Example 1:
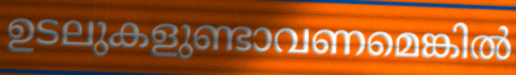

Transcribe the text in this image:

ഉടലുകളുണ്ടാവണമെങ്കിൽ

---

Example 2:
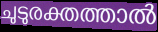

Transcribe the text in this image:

ചുടുരക്തത്താൽ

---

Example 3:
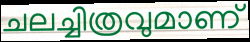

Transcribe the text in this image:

ചലച്ചിത്രവുമാണ്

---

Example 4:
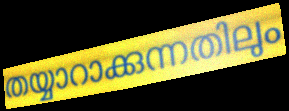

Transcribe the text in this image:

തയ്യാറാക്കുന്നതിലും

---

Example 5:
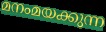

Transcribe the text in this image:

മനംമയക്കുന്ന